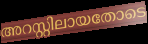
അറസ്റ്റിലായതോടെ